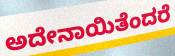
ಅದೇನಾಯಿತೆಂದರೆ